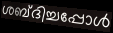
ശബ്ദിച്ചപ്പോൾ